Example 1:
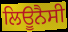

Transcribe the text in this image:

ਲਿਊਨੈਸੀ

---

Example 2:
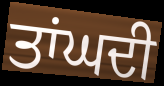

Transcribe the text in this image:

ਤਾਂਘਦੀ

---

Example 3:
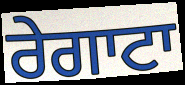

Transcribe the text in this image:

ਰੇਗਾਟਾ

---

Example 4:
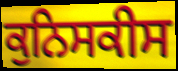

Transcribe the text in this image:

ਕੁਨਿਸਕੀਸ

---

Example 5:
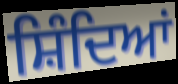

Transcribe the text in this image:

ਸ਼ਿੰਦਿਆਂ